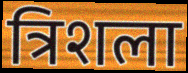
त्रिशला